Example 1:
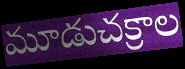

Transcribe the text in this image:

మూడుచక్రాల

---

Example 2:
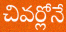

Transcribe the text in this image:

చివర్లోనే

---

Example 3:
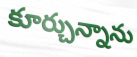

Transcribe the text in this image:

కూర్చున్నాను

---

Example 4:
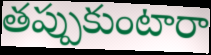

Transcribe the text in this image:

తప్పుకుంటారా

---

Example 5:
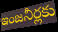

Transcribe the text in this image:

ఇంజనీర్లకు